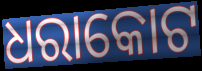
ଧରାକୋଟ